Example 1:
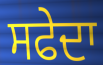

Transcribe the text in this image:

ਸਫੇਦਾ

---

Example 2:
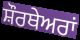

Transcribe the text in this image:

ਸ਼ੌਰਥੇਅਰਾਂ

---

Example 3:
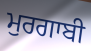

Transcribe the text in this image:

ਮੁਰਗਾਬੀ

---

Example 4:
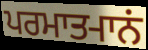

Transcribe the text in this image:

ਪਰਮਾਤ੍ਮਾਨਂ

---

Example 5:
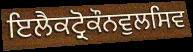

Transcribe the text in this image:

ਇਲੈਕਟ੍ਰੋਕੌਨਵੁਲਸਿਵ